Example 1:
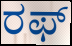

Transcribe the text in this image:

ರಫ್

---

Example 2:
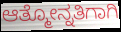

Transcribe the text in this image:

ಆತ್ಮೋನ್ನತಿಗಾಗಿ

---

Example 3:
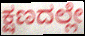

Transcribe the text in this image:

ಕ್ಷಣದಲ್ಲೇ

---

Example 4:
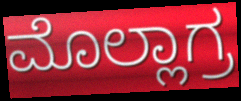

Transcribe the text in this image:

ಮೊಲ್ಲಾಗ್ರ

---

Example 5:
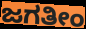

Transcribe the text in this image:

ಜಗತೀಂ